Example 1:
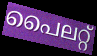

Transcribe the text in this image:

പൈലറ്റ്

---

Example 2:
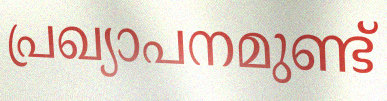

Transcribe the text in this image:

പ്രഖ്യാപനമുണ്ട്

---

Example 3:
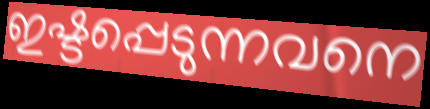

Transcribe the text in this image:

ഇഷ്ടപ്പെടുന്നവനെ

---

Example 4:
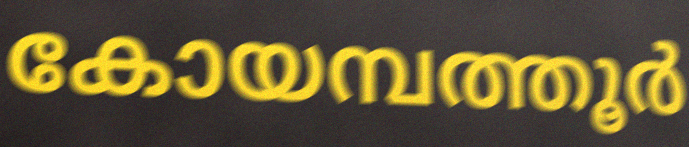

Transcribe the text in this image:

കോയമ്പത്തൂർ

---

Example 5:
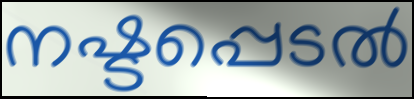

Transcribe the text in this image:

നഷ്ടപ്പെടൽ